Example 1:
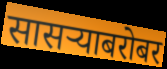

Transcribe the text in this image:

सासऱ्याबरोबर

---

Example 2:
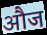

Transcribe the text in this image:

औज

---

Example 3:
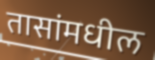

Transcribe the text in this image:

तासांमधील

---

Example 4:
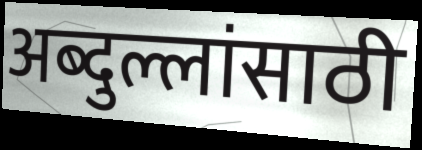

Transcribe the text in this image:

अब्दुल्लांसाठी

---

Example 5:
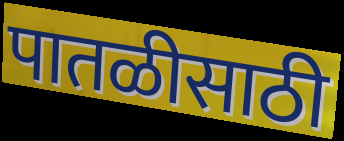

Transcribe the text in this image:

पातळीसाठी